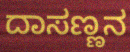
ದಾಸಣ್ಣನ